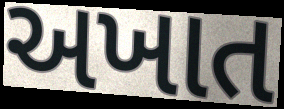
અખાત